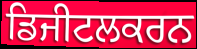
ਡਿਜੀਟਲਕਰਨ